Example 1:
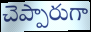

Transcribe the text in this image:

చెప్పారుగా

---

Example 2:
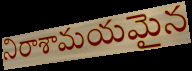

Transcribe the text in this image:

నిరాశామయమైన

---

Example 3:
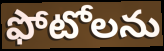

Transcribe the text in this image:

ఫోటోలను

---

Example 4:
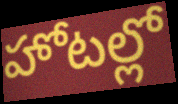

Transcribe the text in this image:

హోటల్లో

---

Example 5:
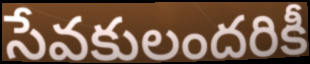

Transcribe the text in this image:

సేవకులందరికీ